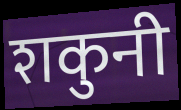
शकुनी